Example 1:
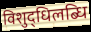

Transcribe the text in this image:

विशुद्धिलब्धि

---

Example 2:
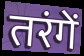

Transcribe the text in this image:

तरंगें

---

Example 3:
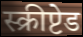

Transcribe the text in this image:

स्क्रीप्टेड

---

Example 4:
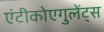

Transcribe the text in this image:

एंटीकोएगुलेंट्स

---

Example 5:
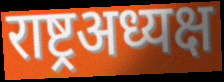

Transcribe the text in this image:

राष्ट्रअध्यक्ष